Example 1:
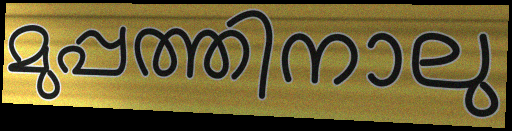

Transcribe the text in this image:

മുപ്പത്തിനാലു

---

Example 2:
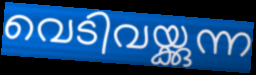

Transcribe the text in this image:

വെടിവയ്ക്കുന്ന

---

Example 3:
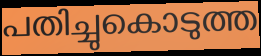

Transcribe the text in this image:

പതിച്ചുകൊടുത്ത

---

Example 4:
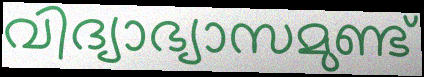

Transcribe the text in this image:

വിദ്യാഭ്യാസമുണ്ട്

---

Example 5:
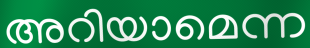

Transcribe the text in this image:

അറിയാമെന്ന